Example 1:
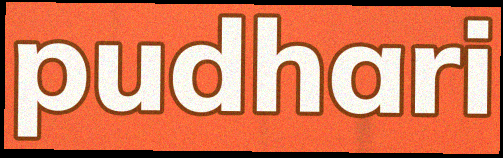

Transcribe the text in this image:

pudhari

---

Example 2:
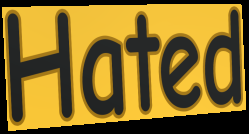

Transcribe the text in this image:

Hated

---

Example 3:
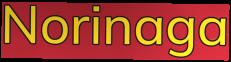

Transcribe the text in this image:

Norinaga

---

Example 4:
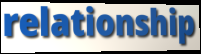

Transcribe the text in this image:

relationship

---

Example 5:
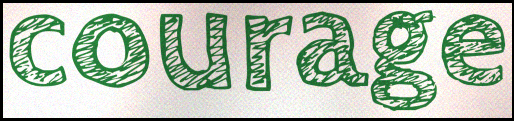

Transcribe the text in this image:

courage